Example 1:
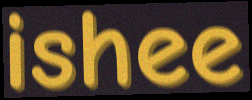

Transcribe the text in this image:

ishee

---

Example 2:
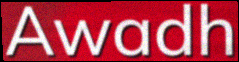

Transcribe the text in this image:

Awadh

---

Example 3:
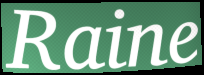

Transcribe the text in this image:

Raine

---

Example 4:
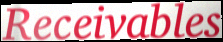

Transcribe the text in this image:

Receivables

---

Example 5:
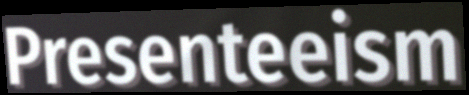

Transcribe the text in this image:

Presenteeism